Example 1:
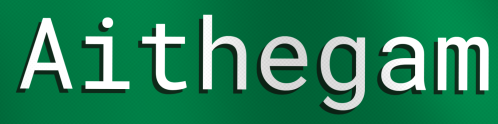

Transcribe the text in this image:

Aithegam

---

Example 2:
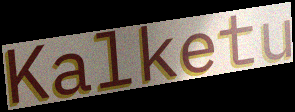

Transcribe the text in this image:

Kalketu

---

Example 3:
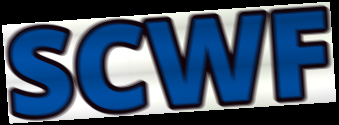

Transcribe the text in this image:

SCWF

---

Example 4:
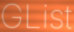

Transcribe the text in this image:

GList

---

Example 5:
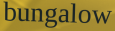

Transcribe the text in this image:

bungalow